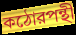
কঠোরপন্থী